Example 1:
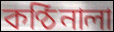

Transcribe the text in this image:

কণ্ঠিনালা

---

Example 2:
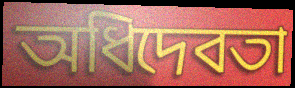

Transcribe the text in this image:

অধিদেবতা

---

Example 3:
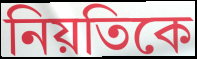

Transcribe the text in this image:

নিয়তিকে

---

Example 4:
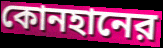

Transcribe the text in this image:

কোনহানের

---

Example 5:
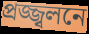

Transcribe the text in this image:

প্রজ্জ্বলনে